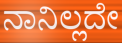
ನಾನಿಲ್ಲದೇ